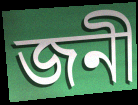
জনী